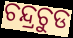
ଚନ୍ଦ୍ରଚୁଡ